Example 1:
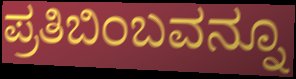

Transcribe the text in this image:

ಪ್ರತಿಬಿಂಬವನ್ನೂ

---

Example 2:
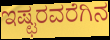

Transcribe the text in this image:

ಇಷ್ಟರವರೆಗಿನ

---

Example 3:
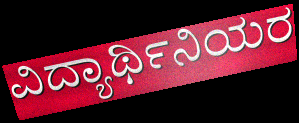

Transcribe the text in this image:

ವಿದ್ಯಾರ್ಥಿನಿಯರ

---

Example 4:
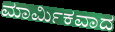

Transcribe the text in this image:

ಮಾರ್ಮಿಕವಾದ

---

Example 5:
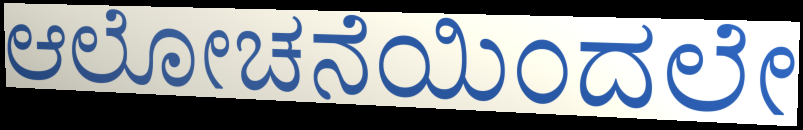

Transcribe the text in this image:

ಆಲೋಚನೆಯಿಂದಲೇ